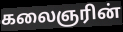
கலைஞரின்